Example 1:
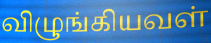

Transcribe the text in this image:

விழுங்கியவள்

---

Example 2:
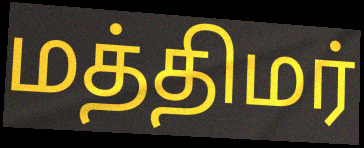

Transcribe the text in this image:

மத்திமர்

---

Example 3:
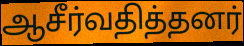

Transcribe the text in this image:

ஆசீர்வதித்தனர்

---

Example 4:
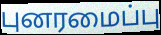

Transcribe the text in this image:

புனரமைப்பு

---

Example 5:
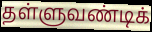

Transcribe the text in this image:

தள்ளுவண்டிக்